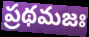
ప్రథమజః